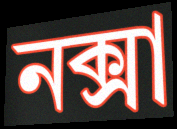
নক্সা